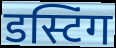
डस्टिंग